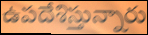
ఉపదేశిస్తున్నారు